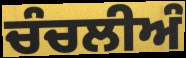
ਚੰਚਲੀਅੰ